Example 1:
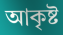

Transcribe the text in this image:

আকৃষ্ট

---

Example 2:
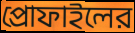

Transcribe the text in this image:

প্রোফাইলের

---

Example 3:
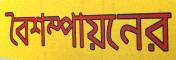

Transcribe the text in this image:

বৈশম্পায়নের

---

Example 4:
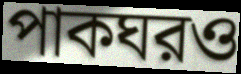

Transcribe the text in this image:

পাকঘরও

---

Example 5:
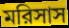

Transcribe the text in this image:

মরিসাস